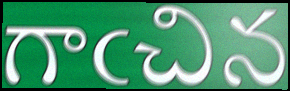
గాఁచిన